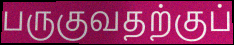
பருகுவதற்குப்